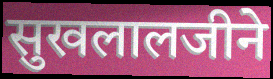
सुखलालजीने